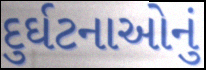
દુર્ઘટનાઓનું